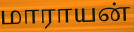
மாராயன்